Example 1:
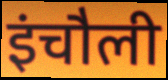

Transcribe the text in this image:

इंचौली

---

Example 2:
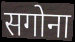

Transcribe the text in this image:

सगोना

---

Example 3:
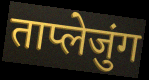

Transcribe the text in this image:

ताप्लेजुंग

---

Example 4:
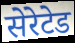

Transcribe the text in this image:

सेरेटेड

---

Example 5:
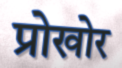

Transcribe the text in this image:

प्रोखोर